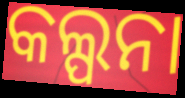
କଲ୍ପନା